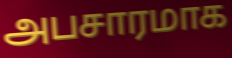
அபசாரமாக